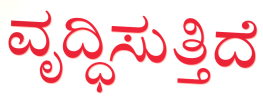
ವೃದ್ಧಿಸುತ್ತಿದೆ